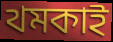
থমকাই